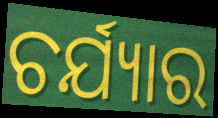
ଚର୍ଯ୍ୟାର